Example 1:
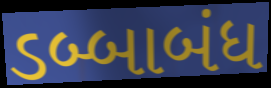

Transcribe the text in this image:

ડબ્બાબંધ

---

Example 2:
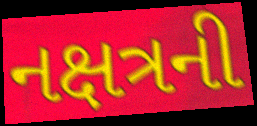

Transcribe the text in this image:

નક્ષત્રની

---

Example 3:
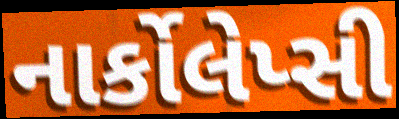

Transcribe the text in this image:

નાર્કોલેપ્સી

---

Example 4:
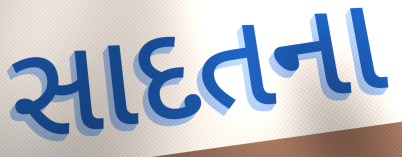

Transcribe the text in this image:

સાદતના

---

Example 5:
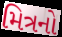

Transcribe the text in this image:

મિત્રનો